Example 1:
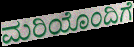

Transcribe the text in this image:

ಮರಿಯೊಂದಿಗೆ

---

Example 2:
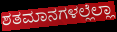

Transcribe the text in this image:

ಶತಮಾನಗಳಲ್ಲೆಲ್ಲಾ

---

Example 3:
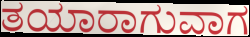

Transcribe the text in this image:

ತಯಾರಾಗುವಾಗ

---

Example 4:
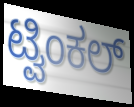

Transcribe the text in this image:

ಟ್ವಿಂಕಲ್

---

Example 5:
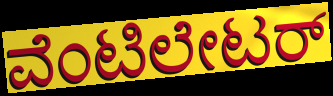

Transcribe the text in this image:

ವೆಂಟಿಲೇಟರ್